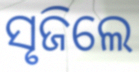
ସୃଜିଲେ